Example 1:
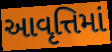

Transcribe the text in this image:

આવૃત્તિમાં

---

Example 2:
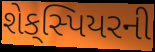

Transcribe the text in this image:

શેક્‌સ્પિયરની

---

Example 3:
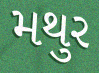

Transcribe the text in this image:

મથુર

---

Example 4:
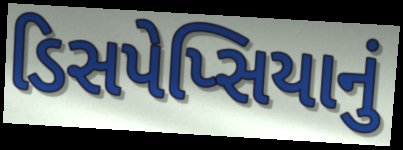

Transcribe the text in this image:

ડિસપેપ્સિયાનું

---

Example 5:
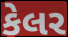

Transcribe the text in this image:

કેલર